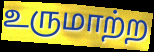
உருமாற்ற